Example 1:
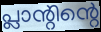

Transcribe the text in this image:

പ്ലാന്റിന്റെ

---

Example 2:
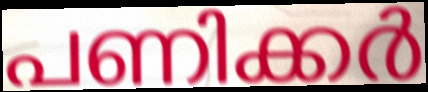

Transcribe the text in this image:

പണിക്കർ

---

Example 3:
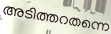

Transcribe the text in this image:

അടിത്തറതന്നെ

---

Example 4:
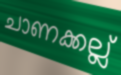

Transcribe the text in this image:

ചാണക്കല്ല്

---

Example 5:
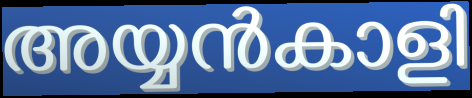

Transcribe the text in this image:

അയ്യൻകാളി